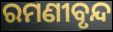
ରମଣୀବୃନ୍ଦ